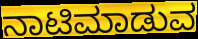
ನಾಟಿಮಾಡುವ